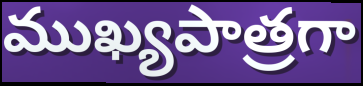
ముఖ్యపాత్రగా